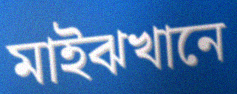
মাইঝখানে